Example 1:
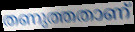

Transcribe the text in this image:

തണുത്തതാണ്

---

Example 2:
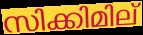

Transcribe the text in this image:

സിക്കിമില്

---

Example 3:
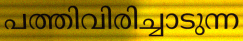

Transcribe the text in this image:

പത്തിവിരിച്ചാടുന്ന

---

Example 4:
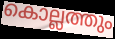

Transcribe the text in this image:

കൊല്ലത്തും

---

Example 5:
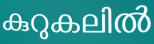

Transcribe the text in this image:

കുറുകലിൽ